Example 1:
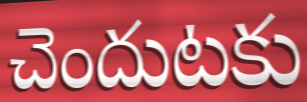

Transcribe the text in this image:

చెందుటకు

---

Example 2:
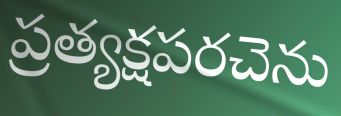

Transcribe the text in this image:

ప్రత్యక్షపరచెను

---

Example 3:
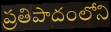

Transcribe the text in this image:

ప్రతిపాదంలోని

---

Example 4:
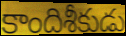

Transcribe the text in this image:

కాందిశీకుడు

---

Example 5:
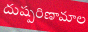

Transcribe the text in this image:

దుష్పరిణామాల